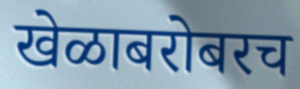
खेळाबरोबरच